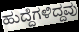
ಹುದ್ದೆಗಳಿದ್ದವು